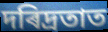
দৰিদ্ৰতাত